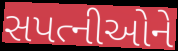
સપત્નીઓને